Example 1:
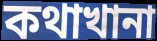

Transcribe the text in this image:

কথাখানা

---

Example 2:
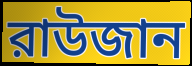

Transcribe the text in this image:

রাউজান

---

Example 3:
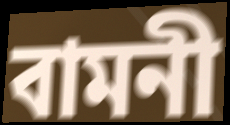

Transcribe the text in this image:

বামনী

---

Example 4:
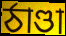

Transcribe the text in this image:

ঠাণ্ডা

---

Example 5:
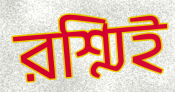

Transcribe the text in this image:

রশ্মিই